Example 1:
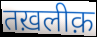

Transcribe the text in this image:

तख़लीक़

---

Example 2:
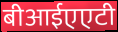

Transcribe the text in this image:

बीआईएएटी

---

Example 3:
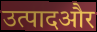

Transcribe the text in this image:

उत्पादऔर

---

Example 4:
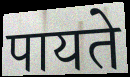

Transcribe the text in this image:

पायते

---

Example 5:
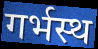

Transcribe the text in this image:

गर्भस्‍थ